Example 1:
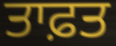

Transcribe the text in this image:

ਤਾਫ਼ਤ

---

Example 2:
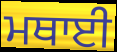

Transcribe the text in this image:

ਮਥਾਈ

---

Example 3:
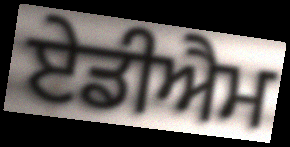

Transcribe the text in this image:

ਏਡੀਐਮ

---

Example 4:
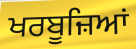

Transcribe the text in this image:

ਖਰਬੂਜ਼ਿਆਂ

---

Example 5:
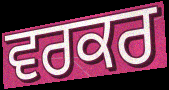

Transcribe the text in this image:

ਵਰਕਰ